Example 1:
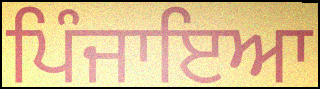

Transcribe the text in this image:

ਪਿੰਜਾਇਆ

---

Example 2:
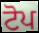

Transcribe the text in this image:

ਟੋਪ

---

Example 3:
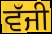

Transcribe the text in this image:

ਵੱਜੀ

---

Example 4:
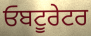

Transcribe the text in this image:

ਓਬਟੂਰੇਟਰ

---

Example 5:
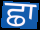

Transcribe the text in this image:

ਛਾ